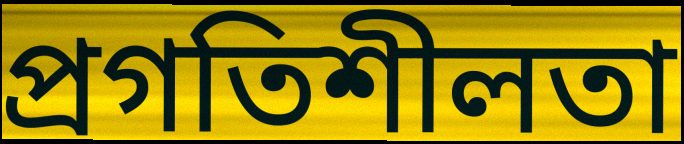
প্রগতিশীলতা